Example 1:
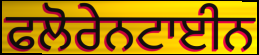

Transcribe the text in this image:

ਫਲੋਰੇਨਟਾਈਨ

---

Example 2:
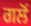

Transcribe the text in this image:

ਗਲੋਂ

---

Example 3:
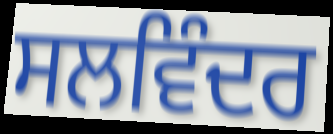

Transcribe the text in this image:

ਸਲਵਿੰਦਰ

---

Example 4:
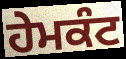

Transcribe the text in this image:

ਹੇਮਕੰਟ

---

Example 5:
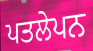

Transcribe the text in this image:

ਪਤਲੇਪਨ